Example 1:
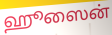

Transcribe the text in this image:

ஹூஸைன்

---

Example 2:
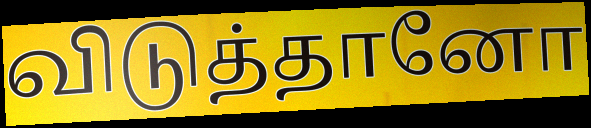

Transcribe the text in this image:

விடுத்தானோ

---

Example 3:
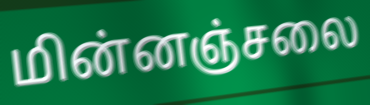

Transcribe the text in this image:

மின்னஞ்சலை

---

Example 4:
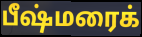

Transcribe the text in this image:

பீஷ்மரைக்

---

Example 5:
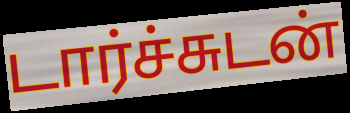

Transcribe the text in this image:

டார்ச்சுடன்